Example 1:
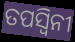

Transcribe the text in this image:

ତପସ୍ଵିନୀ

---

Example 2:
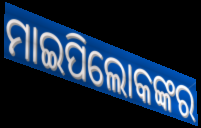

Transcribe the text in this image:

ମାଇପିଲୋକଙ୍କର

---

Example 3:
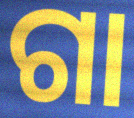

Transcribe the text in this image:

ଗା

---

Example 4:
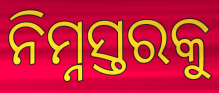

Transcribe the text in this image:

ନିମ୍ନସ୍ତରକୁ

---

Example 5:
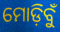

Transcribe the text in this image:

ମୋଡ଼ିବୁଁ